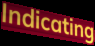
Indicating